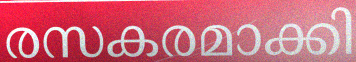
രസകരമാക്കി